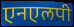
एनएलपी